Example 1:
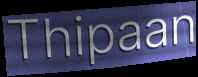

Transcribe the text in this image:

Thipaan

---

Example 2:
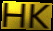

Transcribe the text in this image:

HK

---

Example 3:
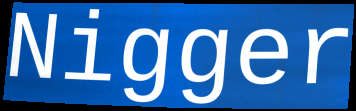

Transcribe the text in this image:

Nigger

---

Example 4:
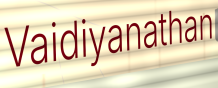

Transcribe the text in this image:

Vaidiyanathan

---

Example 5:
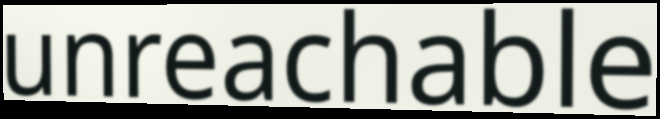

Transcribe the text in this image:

unreachable